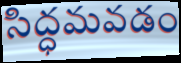
సిద్ధమవడం